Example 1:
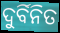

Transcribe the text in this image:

ଦୁର୍ବିନିତ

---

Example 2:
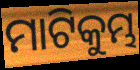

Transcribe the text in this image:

ମାଟିକୁମ୍ଭ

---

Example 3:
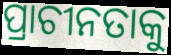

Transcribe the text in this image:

ପ୍ରାଚୀନତାକୁ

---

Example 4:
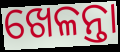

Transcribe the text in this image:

ଖେଳନ୍ତା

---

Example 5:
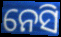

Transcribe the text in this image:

ନେସି